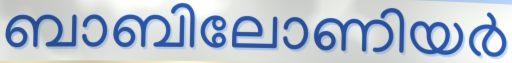
ബാബിലോണിയർ